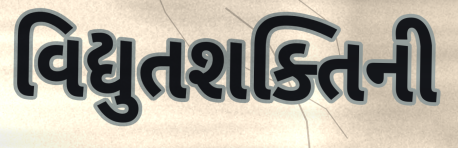
વિદ્યુતશક્તિની